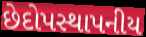
છેદોપસ્થાપનીય